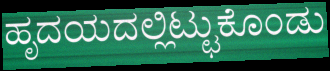
ಹೃದಯದಲ್ಲಿಟ್ಟುಕೊಂಡು